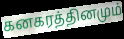
கனகரத்தினமும்